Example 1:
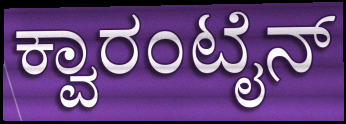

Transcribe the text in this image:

ಕ್ವಾರಂಟೈನ್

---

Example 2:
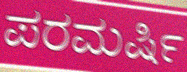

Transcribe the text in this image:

ಪರಮರ್ಷಿ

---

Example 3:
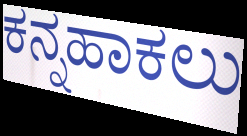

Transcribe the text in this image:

ಕನ್ನಹಾಕಲು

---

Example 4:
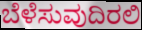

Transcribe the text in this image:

ಬೆಳೆಸುವುದಿರಲಿ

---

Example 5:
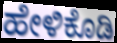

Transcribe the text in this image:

ಹೇಳಿಕೊಡಿ